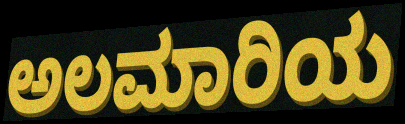
ಅಲಮಾರಿಯ